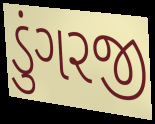
ડુંગરજી